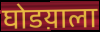
घोडय़ाला